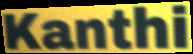
Kanthi